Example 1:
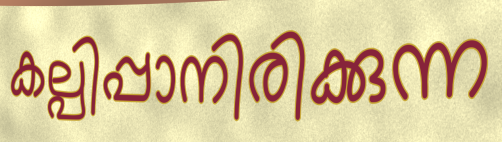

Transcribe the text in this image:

കല്പിപ്പാനിരിക്കുന്ന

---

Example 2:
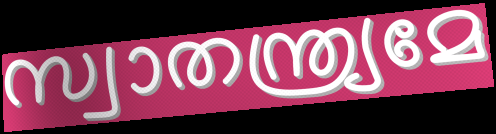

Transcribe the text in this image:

സ്വാതന്ത്ര്യമേ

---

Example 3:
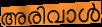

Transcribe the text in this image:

അരിവാൾ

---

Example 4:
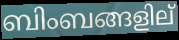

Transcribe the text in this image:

ബിംബങ്ങളില്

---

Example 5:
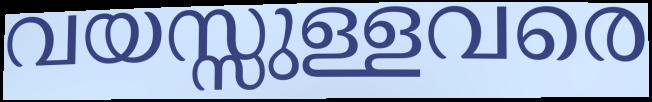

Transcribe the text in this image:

വയസ്സുള്ളവരെ